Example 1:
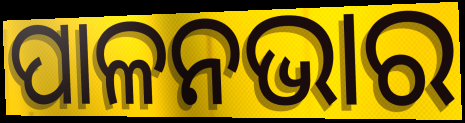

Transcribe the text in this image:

ପାଳନଭାର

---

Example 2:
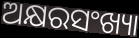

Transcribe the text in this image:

ଅକ୍ଷରସଂଖ୍ୟା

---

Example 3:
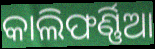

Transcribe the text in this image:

କାଲିଫର୍ଣ୍ଣିଆ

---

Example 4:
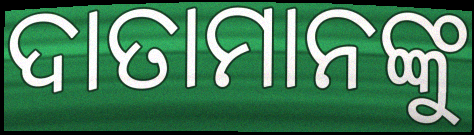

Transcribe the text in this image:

ଦାତାମାନଙ୍କୁ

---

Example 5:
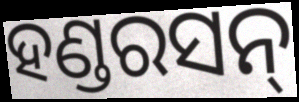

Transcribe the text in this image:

ହଣ୍ଡରସନ୍